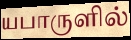
யபாருளில்